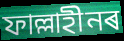
ফাল্লাহীনৰ